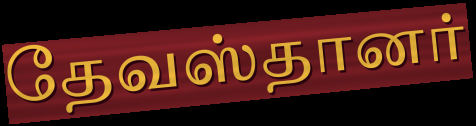
தேவஸ்தானர்